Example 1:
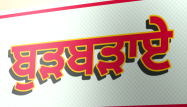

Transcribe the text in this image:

ਬੁੜਬੜਾਏ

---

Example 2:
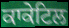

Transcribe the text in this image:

ਕਾਕੇਟਿਲ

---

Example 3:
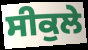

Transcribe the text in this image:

ਸੀਕੁਲੇ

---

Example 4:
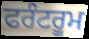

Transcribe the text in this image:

ਫਰੰਟਰੂਮ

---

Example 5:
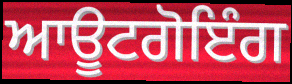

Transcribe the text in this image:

ਆਊਟਗੋਇੰਗ